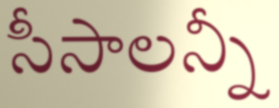
సీసాలన్నీ